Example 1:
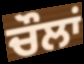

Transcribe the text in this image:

ਚੌਲਾਂ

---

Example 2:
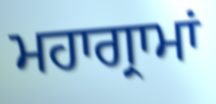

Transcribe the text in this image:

ਮਹਾਗ੍ਰਾਮਾਂ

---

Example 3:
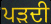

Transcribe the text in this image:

ਪੜਦੀ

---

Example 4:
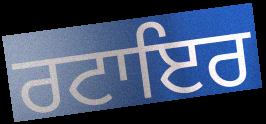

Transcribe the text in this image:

ਰਟਾਇਰ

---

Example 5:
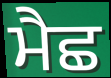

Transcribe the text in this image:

ਮੈਛ